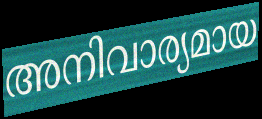
അനിവാര്യമായ